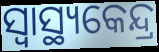
ସ୍ୱାସ୍ଥ୍ୟକେନ୍ଦ୍ର